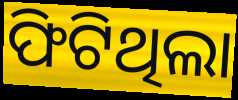
ଫିଟିଥିଲା